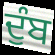
ਦੁੰਬ